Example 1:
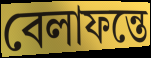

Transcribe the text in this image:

বেলাফন্তে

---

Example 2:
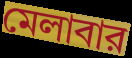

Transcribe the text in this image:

মেলাবার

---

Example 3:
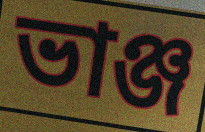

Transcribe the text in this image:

ভাঞ্জ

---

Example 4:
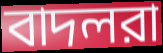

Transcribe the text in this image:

বাদলরা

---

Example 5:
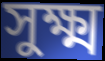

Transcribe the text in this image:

সুক্ষ্ম